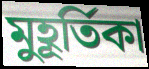
মুহূর্তিকা